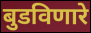
बुडविणारे